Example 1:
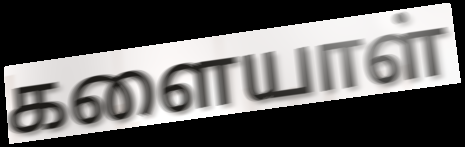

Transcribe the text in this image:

களையாள்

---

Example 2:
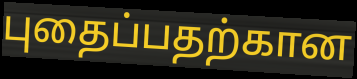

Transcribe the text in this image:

புதைப்பதற்கான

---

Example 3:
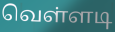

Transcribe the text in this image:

வெள்ளடி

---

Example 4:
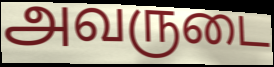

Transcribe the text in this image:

அவருடை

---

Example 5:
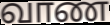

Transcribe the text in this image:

வாண